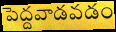
పెద్దవాడవడం